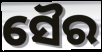
ସୈର